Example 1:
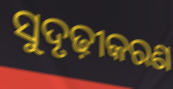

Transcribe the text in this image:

ସୁଦୃଢ଼ୀକରଣ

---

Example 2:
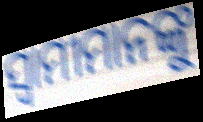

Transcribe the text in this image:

ସ୍ବାମୀମାନଙ୍କୁ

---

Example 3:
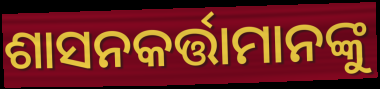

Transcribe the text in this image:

ଶାସନକର୍ତ୍ତାମାନଙ୍କୁ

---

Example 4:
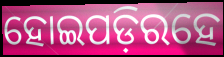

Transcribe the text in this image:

ହୋଇପଡ଼ିରହେ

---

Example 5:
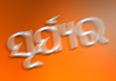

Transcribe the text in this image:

ସୂର୍ଯ୍ୟର